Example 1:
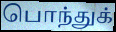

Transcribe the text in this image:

பொந்துக்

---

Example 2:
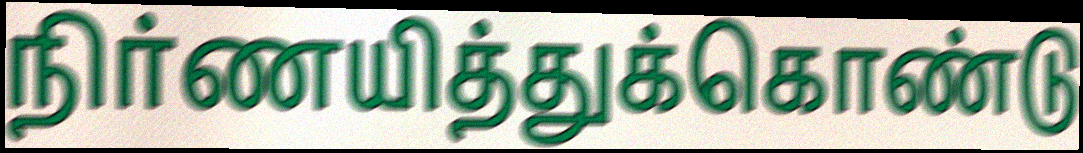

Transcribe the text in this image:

நிர்ணயித்துக்கொண்டு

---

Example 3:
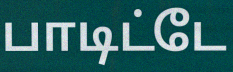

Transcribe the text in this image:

பாடிட்டே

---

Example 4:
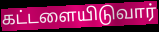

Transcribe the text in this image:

கட்டளையிடுவார்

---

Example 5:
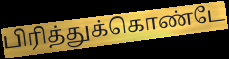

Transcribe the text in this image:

பிரித்துக்கொண்டே